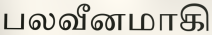
பலவீனமாகி